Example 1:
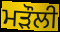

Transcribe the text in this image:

ਮੜੌਲੀ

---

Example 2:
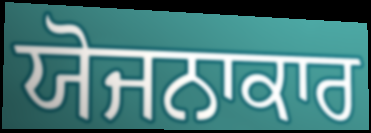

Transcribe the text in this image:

ਯੋਜਨਾਕਾਰ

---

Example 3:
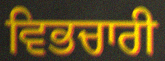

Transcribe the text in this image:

ਵਿਭਚਾਰੀ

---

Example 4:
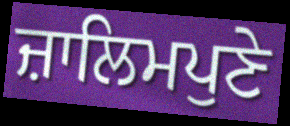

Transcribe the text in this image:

ਜ਼ਾਲਿਮਪੁਣੇ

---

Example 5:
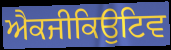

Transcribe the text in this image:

ਐਕਜੀਕਿਉਟਿਵ